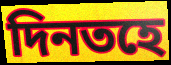
দিনতহে